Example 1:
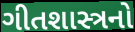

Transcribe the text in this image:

ગીતશાસ્ત્રનો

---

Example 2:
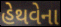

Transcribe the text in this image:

હેથવેના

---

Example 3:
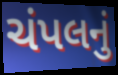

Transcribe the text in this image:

ચંપલનું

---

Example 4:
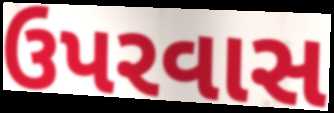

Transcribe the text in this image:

ઉપરવાસ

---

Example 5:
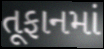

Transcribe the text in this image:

તૂફાનમાં